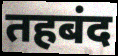
तहबंद